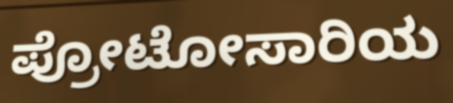
ಪ್ರೋಟೋಸಾರಿಯ